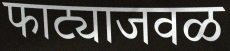
फाट्याजवळ